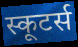
स्‍कूटर्स